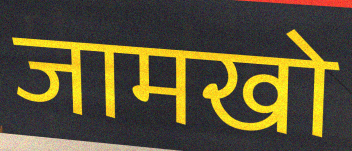
जामखो